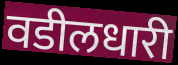
वडीलधारी